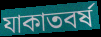
যাকাতবর্ষ